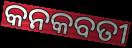
କନକବତୀ